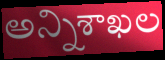
అన్నిశాఖల